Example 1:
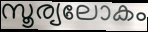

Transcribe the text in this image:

സൂര്യലോകം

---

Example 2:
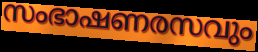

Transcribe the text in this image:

സംഭാഷണരസവും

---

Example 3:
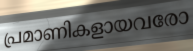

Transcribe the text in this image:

പ്രമാണികളായവരോ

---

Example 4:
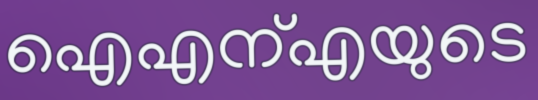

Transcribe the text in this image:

ഐഎന്എയുടെ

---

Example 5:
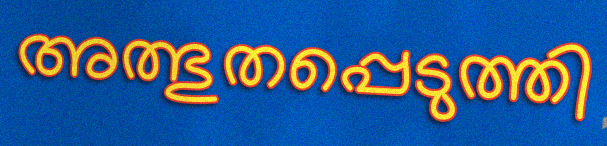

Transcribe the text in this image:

അത്ഭുതപ്പെടുത്തി